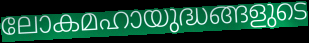
ലോകമഹായുദ്ധങ്ങളുടെ